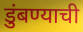
डुंबण्याची